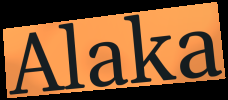
Alaka